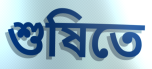
শুষিতে